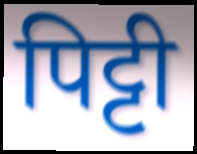
पिट्टी